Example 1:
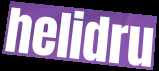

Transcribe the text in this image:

helidru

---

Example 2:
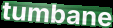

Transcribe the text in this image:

tumbane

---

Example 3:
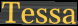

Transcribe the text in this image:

Tessa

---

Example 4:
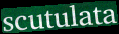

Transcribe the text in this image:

scutulata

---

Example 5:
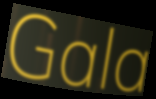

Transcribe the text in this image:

Gala